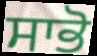
ਸਾਭੋ